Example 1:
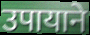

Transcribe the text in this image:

उपायाने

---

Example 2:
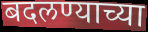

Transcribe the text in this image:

बदलण्याच्या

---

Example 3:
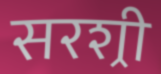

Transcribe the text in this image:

सरश्री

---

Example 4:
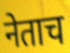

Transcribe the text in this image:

नेताच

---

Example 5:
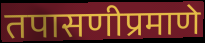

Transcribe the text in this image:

तपासणीप्रमाणे